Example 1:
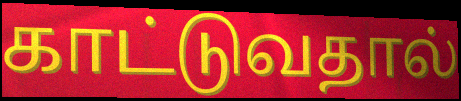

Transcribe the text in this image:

காட்டுவதால்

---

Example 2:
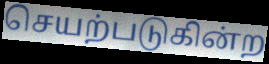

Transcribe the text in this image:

செயற்படுகின்ற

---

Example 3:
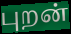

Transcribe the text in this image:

புறன்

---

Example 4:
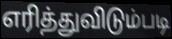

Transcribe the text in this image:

எரித்துவிடும்படி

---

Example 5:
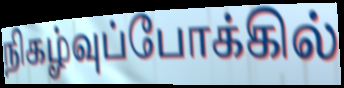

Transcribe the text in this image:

நிகழ்வுப்போக்கில்